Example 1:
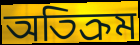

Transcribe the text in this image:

অতিক্রম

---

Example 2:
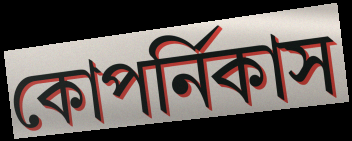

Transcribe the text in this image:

কোপর্নিকাস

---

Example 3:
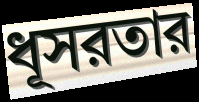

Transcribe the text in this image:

ধূসরতার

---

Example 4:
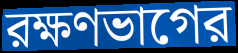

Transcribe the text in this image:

রক্ষণভাগের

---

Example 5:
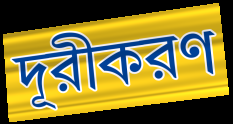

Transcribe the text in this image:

দূরীকরণ